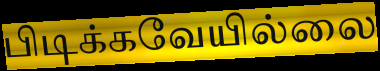
பிடிக்கவேயில்லை